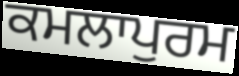
ਕਮਲਾਪੁਰਮ